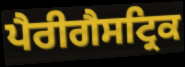
ਪੈਰੀਗੈਸਟ੍ਰਿਕ